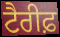
ਟੈਰੀਫ਼